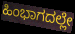
ಹಿಂಭಾಗದಲ್ಲೇ